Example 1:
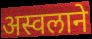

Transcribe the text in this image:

अस्वलाने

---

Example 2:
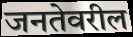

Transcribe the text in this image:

जनतेवरील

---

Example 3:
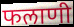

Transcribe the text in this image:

फलाणी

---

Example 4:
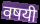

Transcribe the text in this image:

वषयी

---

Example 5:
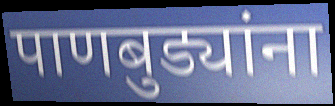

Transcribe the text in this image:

पाणबुड्यांना